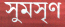
সুমসৃণ